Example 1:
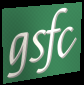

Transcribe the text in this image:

gsfc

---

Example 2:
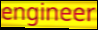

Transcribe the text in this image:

engineer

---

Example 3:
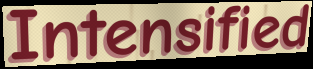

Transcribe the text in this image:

Intensified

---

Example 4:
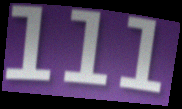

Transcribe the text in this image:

lll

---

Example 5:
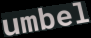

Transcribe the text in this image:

umbel